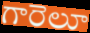
గారెలూ